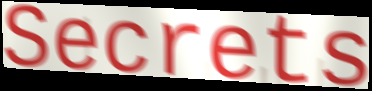
Secrets